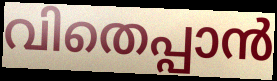
വിതെപ്പാൻ